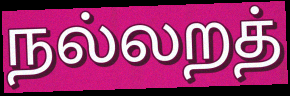
நல்லறத்